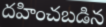
దహించబడిన